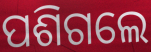
ପଶିଗଲେ